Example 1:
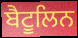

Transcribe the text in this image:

ਬੈਟੂਲਿਨ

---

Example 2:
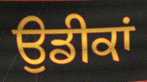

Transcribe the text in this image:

ਉਡੀਕਾਂ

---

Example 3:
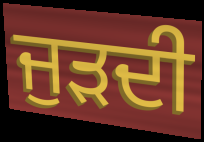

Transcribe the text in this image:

ਜੁੜਦੀ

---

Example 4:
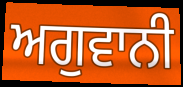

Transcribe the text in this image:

ਅਗੁਵਾਨੀ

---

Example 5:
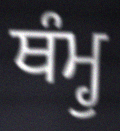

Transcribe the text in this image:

ਥੰਮ੍ਹ੍ਹੁ